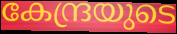
കേന്ദ്രയുടെ